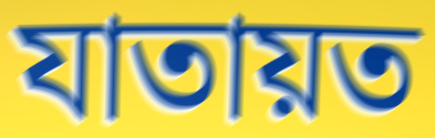
যাতায়ত